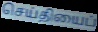
செய்தியைப்